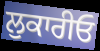
ਲੁਕਾਰੀਓ